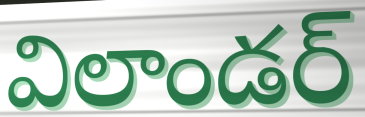
విలాండర్